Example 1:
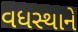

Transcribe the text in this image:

વધસ્થાને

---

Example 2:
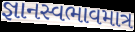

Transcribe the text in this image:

જ્ઞાનસ્વભાવમાત્ર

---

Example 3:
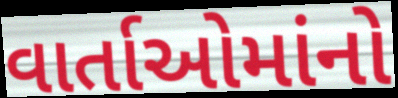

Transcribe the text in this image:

વાર્તાઓમાંનો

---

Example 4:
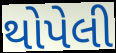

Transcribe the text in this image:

થોપેલી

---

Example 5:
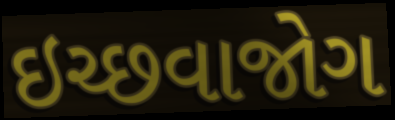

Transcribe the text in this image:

ઇચ્છવાજોગ